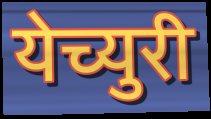
येच्युरी